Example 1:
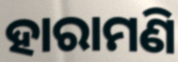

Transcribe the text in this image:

ହାରାମଣି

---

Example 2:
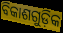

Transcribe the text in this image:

ବିକାଶଗୁଡ଼ିକ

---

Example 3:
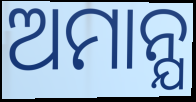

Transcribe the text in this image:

ଅମାନ୍ଯ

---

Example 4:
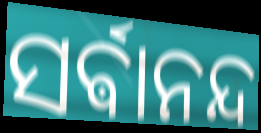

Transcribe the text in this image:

ସର୍ଵାନନ୍ଦ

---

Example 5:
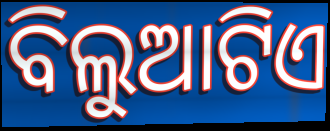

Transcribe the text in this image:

ବିଲୁଆଟିଏ